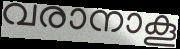
വരാനാകൂ